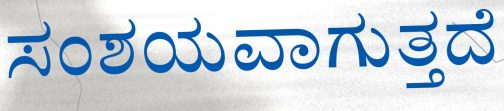
ಸಂಶಯವಾಗುತ್ತದೆ